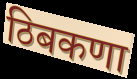
ठिबकणा